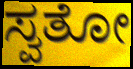
ಸ್ವತೋ